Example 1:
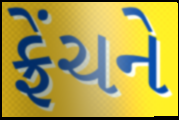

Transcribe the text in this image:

ફ્રેંચને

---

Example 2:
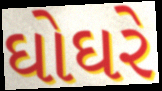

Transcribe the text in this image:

ઘોઘરે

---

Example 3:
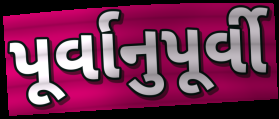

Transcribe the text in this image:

પૂર્વાનુપૂર્વી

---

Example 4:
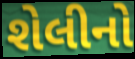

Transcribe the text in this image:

શેલીનો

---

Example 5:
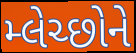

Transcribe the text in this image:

મ્લેચ્છોને